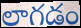
లాగడం